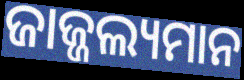
ଜାଜ୍ଜଲ୍ୟମାନ